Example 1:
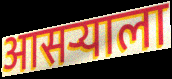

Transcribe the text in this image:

आसऱ्याला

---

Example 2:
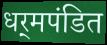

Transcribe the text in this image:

धर्मपंडित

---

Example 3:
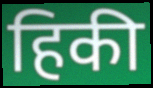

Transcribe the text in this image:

हिकी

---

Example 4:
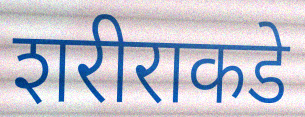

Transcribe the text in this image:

शरीराकडे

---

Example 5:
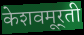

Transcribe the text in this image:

केशवमूर्ती